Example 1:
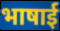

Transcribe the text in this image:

भाषाई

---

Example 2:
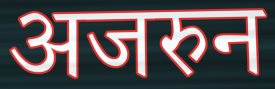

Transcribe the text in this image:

अजरुन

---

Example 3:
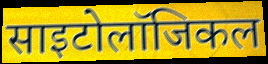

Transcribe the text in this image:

साइटोलॉजिकल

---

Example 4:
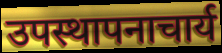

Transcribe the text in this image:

उपस्थापनाचार्य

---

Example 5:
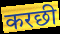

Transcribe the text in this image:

करछी